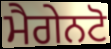
ਮੈਗੇਨਟੋ